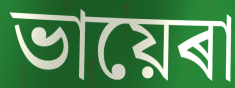
ভায়েৰা